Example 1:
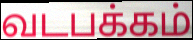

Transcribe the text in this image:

வடபக்கம்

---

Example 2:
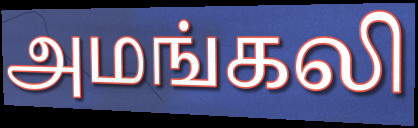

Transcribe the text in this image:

அமங்கலி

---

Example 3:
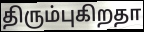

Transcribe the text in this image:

திரும்புகிறதா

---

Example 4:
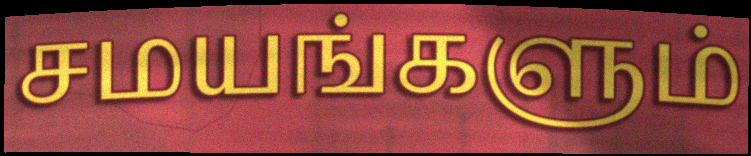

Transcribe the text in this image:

சமயங்களும்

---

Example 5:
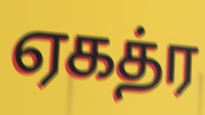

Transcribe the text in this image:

ஏகத்ர